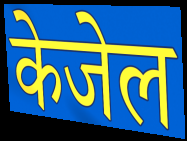
केजेल